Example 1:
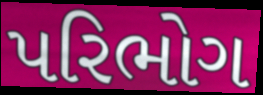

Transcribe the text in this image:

પરિભોગ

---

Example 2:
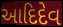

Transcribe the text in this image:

આદિદેવ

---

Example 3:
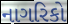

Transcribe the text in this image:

નાગરિકો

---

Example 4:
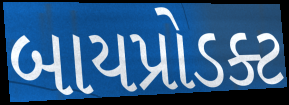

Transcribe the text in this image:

બાયપ્રોડક્ટ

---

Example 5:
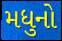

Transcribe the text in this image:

મધુનો